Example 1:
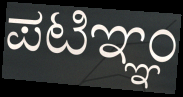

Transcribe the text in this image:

ಪಟಿಞ್ಞಂ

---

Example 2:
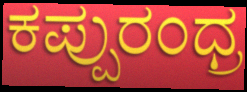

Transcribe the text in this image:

ಕಪ್ಪುರಂಧ್ರ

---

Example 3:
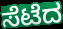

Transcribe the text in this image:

ಸೆಟೆದ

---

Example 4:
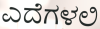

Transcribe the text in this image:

ಎದೆಗಳಲಿ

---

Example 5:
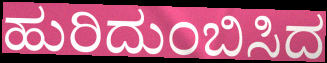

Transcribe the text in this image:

ಹುರಿದುಂಬಿಸಿದ